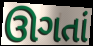
ઊગતાં